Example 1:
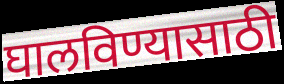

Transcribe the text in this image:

घालविण्यासाठी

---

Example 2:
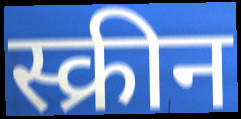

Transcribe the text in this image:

स्क्रीन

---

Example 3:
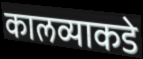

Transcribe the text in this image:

कालव्याकडे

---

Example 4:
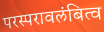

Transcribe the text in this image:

परस्परावलंबित्व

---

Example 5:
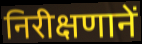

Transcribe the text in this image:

निरीक्षणानें